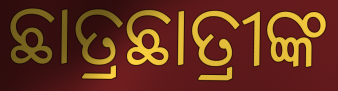
ଛାତ୍ରଛାତ୍ରୀଙ୍କ